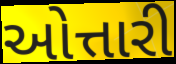
ઓત્તારી